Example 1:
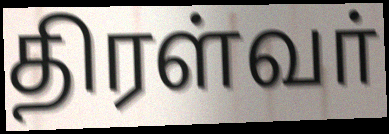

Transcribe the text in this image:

திரள்வர்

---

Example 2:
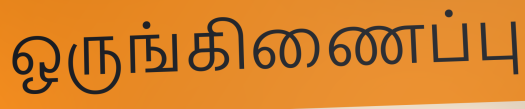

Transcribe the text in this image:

ஒருங்கிணைப்பு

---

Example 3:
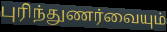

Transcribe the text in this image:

புரிந்துணர்வையும்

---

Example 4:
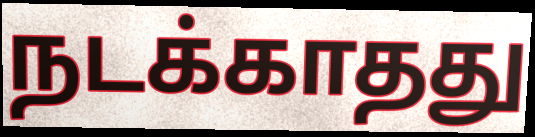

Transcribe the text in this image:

நடக்காதது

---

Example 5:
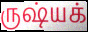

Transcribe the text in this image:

ருஷ்யக்